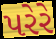
પરેરે